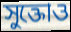
সুক্তোও